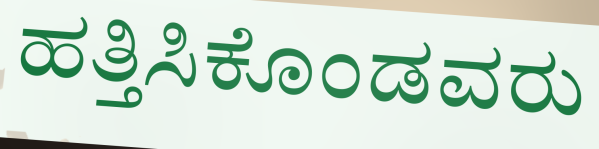
ಹತ್ತಿಸಿಕೊಂಡವರು